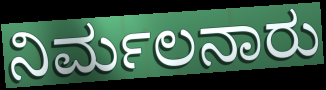
ನಿರ್ಮಲನಾರು